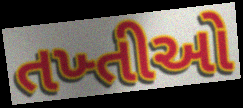
તખ્તીઓ